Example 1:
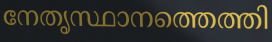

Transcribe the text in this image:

നേതൃസ്ഥാനത്തെത്തി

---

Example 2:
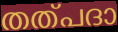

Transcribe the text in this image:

തത്പദാ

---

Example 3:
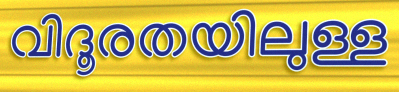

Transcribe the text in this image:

വിദൂരതയിലുള്ള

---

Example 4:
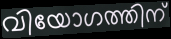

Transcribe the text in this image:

വിയോഗത്തിന്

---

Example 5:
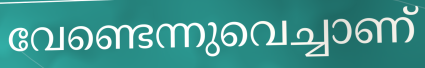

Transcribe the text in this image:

വേണ്ടെന്നുവെച്ചാണ്